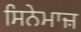
ਸਿਨੇਮਾਜ਼